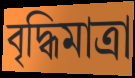
বৃদ্ধিমাত্রা